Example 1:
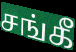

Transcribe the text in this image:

சங்கீ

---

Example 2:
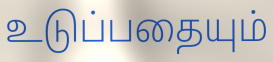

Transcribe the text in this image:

உடுப்பதையும்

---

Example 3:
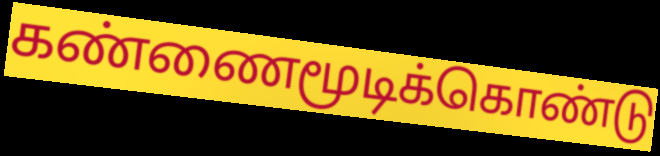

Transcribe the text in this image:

கண்ணைமூடிக்கொண்டு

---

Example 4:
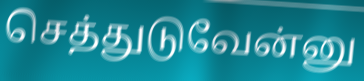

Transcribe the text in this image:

செத்துடுவேன்னு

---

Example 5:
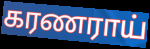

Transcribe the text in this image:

கரணராய்